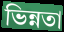
ভিন্নতা